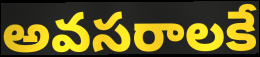
అవసరాలకే